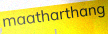
maatharthang